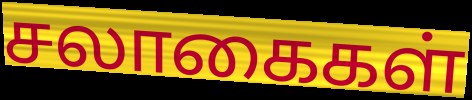
சலாகைகள்